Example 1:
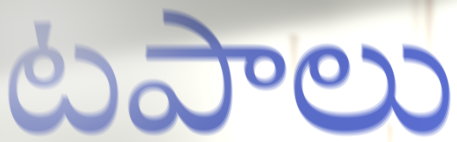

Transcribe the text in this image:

టపాలు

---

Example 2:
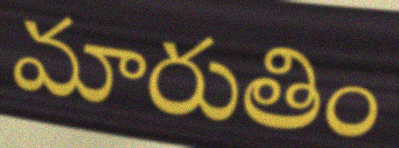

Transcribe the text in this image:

మారుతిం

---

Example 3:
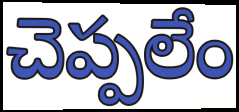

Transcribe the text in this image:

చెప్పలేం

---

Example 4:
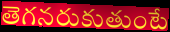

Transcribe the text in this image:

తెగనరుకుతుంటే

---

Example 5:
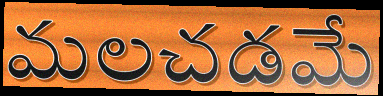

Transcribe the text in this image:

మలచడమే